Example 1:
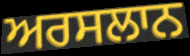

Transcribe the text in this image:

ਅਰਸਲਾਨ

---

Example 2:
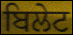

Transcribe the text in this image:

ਬਿਲੇਟ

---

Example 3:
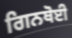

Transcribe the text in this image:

ਗਿਨਥੋਈ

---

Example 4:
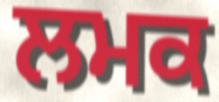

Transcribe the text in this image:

ਲਮਕ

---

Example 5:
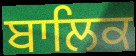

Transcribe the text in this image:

ਬਾਲਿਕ